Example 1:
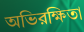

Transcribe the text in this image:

অভিরক্ষিতা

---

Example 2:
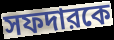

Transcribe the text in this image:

সফদারকে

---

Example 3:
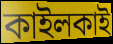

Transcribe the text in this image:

কাইলকাই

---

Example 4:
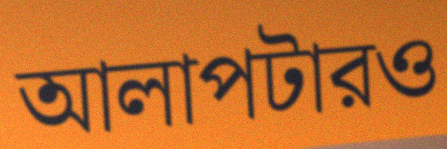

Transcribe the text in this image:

আলাপটারও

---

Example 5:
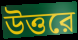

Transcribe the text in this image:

উত্তরে